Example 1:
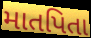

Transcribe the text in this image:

માતપિતા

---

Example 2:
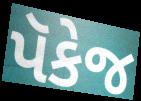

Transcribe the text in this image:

પૅકેજ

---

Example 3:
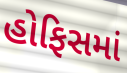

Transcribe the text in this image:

હોફિસમાં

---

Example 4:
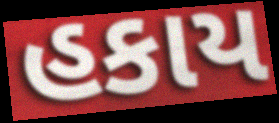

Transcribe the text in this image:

હકાય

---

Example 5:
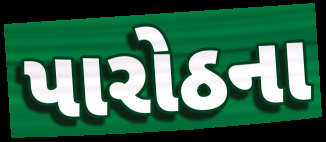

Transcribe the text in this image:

પારોઠના